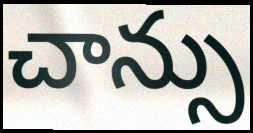
చాన్సు